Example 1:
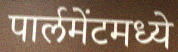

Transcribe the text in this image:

पार्लमेंटमध्ये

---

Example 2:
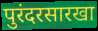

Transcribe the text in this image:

पुरंदरसारखा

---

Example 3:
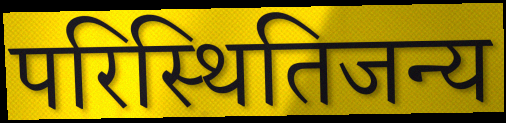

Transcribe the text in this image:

परिस्थितिजन्य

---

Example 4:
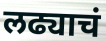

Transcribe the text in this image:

लढ्याचं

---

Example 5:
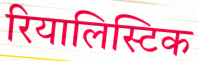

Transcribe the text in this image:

रियालिस्टिक